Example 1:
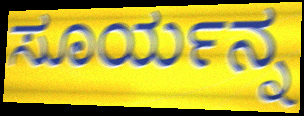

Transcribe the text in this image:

ಸೂರ್ಯನ್ನ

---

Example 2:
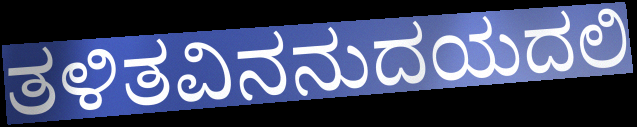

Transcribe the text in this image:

ತಳಿತವಿನನುದಯದಲಿ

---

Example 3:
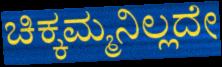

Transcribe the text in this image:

ಚಿಕ್ಕಮ್ಮನಿಲ್ಲದೇ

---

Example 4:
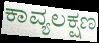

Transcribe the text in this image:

ಕಾವ್ಯಲಕ್ಷಣ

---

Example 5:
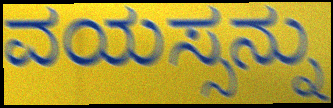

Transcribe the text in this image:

ವಯಸ್ಸನ್ನು